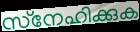
സ്‌നേഹിക്കുക